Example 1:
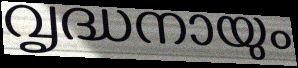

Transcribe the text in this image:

വൃദ്ധനായും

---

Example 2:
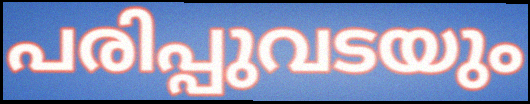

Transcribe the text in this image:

പരിപ്പുവടയും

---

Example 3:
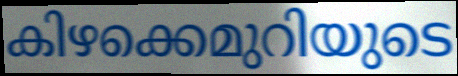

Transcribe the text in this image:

കിഴക്കെമുറിയുടെ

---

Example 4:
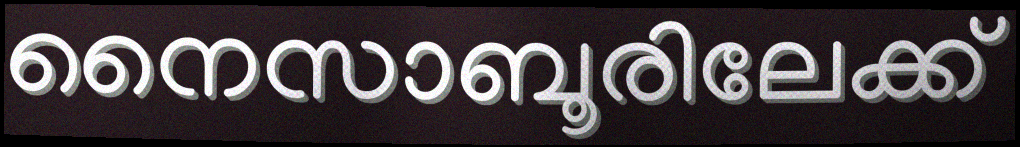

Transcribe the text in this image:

നൈസാബൂരിലേക്ക്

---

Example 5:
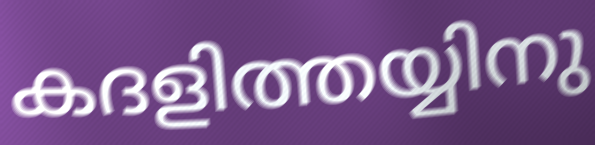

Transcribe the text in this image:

കദളിത്തയ്യിനു